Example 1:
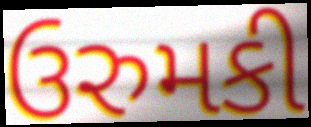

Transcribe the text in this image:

ઉરુમકી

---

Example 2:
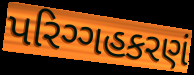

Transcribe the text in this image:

પરિગ્ગહકરણં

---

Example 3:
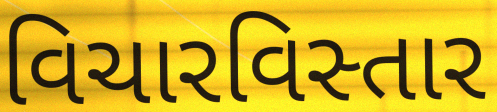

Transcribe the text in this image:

વિચારવિસ્તાર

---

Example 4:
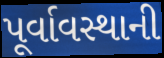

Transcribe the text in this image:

પૂર્વાવસ્થાની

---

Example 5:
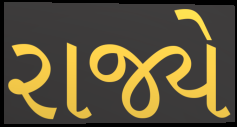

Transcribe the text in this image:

રાજ્યે